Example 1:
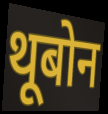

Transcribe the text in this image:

थूबोन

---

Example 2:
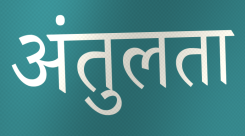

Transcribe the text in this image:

अंतुलता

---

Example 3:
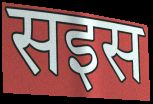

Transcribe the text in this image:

सइस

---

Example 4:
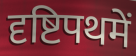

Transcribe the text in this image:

दृष्टिपथमें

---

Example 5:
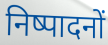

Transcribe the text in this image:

निष्पादनों